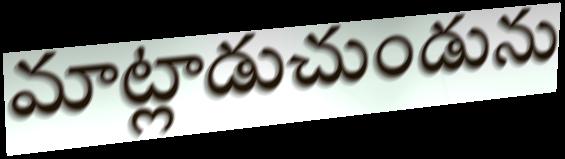
మాట్లాడుచుండును